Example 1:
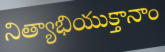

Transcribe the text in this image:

నిత్యాభియుక్తానాం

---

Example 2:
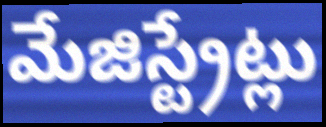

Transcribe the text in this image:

మేజిస్ట్రేట్లు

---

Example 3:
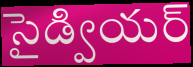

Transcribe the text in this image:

సైడ్వియర్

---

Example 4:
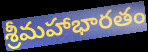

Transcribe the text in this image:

శ్రీమహాభారతం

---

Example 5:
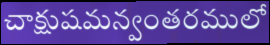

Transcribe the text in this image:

చాక్షుషమన్వంతరములో